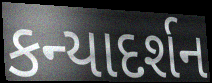
કન્યાદર્શન